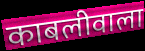
काबलीवाला